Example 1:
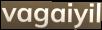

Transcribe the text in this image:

vagaiyil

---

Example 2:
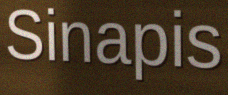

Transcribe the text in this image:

Sinapis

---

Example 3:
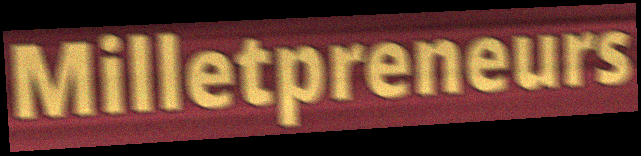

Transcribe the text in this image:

Milletpreneurs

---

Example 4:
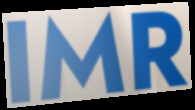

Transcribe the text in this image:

IMR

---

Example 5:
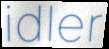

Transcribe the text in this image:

idler